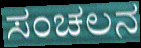
ಸಂಚಲನ